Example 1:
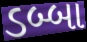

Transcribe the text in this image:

ડબ્બા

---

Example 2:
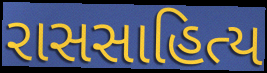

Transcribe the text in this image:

રાસસાહિત્ય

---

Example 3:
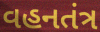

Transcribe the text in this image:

વહનતંત્ર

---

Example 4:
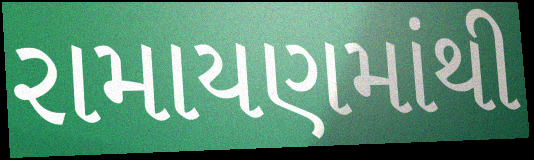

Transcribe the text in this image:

રામાયણમાંથી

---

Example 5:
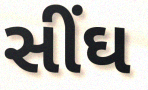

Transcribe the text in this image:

સીંઘ